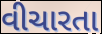
વીચારતા